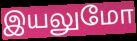
இயலுமோ